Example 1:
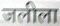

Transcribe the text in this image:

जलीला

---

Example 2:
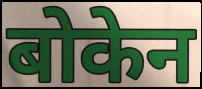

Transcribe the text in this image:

बोकेन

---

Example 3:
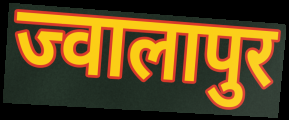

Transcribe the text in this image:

ज्वालापुर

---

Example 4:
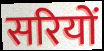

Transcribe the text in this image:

सरियों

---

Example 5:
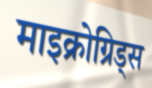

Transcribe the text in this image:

माइक्रोग्रिड्स